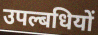
उपल्बधियों